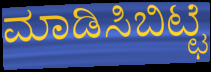
ಮಾಡಿಸಿಬಿಟ್ಟೆ